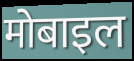
मोबाइल